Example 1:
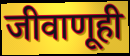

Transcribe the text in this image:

जीवाणूही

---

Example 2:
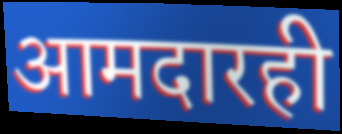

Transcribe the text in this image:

आमदारही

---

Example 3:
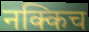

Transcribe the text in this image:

नक्किच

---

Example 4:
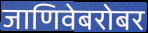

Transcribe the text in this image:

जाणिवेबरोबर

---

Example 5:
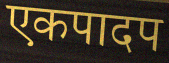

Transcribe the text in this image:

एकपादप